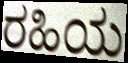
ರಹಿಯ